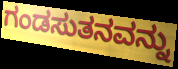
ಗಂಡಸುತನವನ್ನು